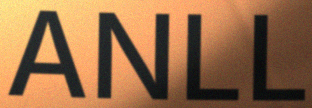
ANLL